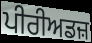
ਪੀਰੀਅਡਜ਼